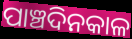
ପାଞ୍ଚଦିନକାଳ